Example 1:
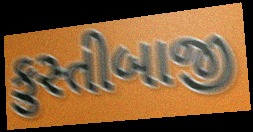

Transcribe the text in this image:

કુસ્તીબાજી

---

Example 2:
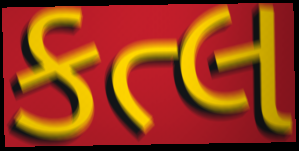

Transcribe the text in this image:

કત્લ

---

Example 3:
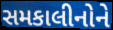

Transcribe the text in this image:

સમકાલીનોને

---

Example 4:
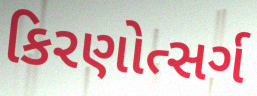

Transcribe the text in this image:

કિરણોત્સર્ગ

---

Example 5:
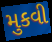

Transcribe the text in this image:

મુકવી